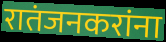
रातंजनकरांना